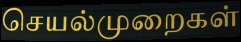
செயல்முறைகள்